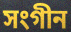
সংগীন